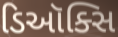
ડિઑક્સિ